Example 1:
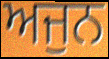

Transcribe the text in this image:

ਅਜੁਨ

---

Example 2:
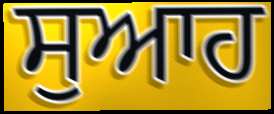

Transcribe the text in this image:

ਸੁਆਹ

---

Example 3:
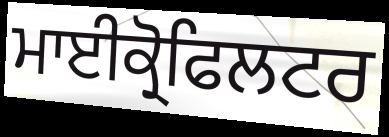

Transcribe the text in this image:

ਮਾਈਕ੍ਰੋਫਿਲਟਰ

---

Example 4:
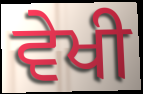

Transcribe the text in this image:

ਵੇਖੀ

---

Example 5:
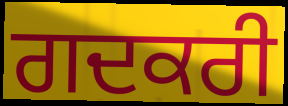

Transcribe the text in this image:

ਗਦਕਰੀ